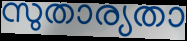
സുതാര്യതാ